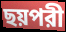
ছয়পরী